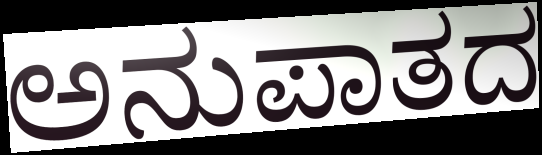
ಅನುಪಾತದ